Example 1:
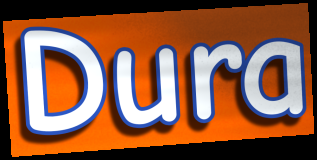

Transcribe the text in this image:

Dura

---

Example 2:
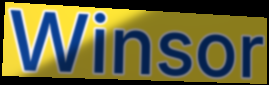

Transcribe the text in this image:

Winsor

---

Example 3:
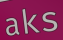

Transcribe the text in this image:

aks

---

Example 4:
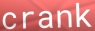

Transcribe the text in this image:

crank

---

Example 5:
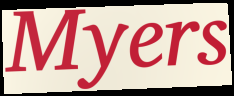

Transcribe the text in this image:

Myers